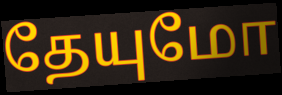
தேயுமோ